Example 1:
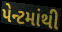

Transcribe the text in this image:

પેન્ટમાંથી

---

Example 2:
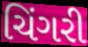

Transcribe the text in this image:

ચિંગરી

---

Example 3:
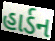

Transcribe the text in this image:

હાર્ડન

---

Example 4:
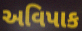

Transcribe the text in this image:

અવિપાક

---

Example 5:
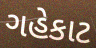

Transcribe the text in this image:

ગહેકાટ